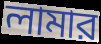
লামার